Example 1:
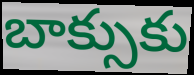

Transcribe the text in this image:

బాక్సుకు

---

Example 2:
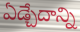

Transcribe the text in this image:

ఏడ్చేదాన్ని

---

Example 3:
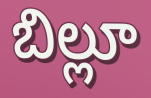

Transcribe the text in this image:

బిల్లూ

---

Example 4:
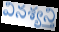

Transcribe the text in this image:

వినశ్యన్తి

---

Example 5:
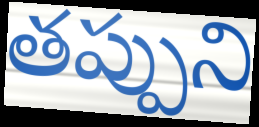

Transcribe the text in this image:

తప్పుని